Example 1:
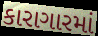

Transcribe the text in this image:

કારાગારમાં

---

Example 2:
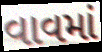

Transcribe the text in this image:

વાવમાં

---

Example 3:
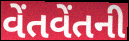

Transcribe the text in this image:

વેંતવેંતની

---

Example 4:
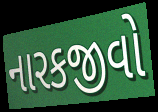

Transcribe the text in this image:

નારકજીવો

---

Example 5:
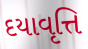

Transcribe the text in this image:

દયાવૃત્તિ